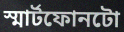
স্মাৰ্টফোনটো